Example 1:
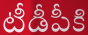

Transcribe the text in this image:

టీడీపీకి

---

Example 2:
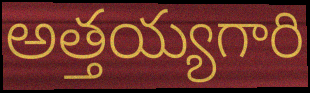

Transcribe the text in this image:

అత్తయ్యగారి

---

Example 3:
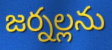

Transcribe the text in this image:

జర్నల్లను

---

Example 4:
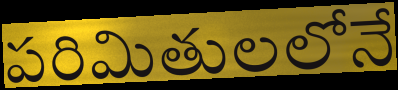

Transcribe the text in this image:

పరిమితులలోనే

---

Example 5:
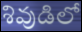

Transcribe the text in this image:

శివుడిలో